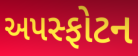
અપસ્ફોટન